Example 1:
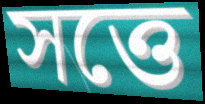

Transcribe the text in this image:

সত্তে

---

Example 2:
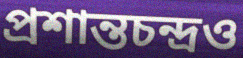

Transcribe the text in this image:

প্রশান্তচন্দ্রও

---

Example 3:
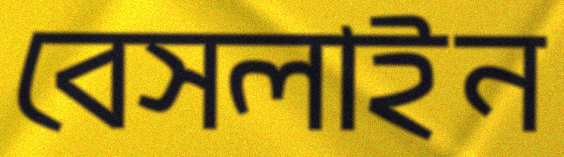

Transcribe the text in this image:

বেসলাইন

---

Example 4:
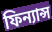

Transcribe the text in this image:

ফিন্যান্স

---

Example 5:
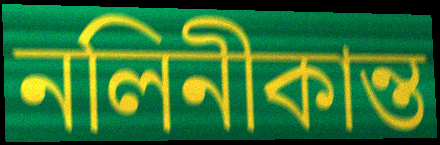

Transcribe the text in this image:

নলিনীকান্ত